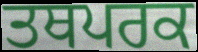
ਤਥਪਰਕ